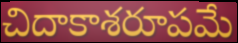
చిదాకాశరూపమే